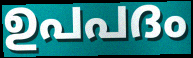
ഉപപദം